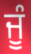
ਜੂੰ